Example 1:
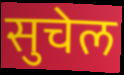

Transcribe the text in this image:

सुचेल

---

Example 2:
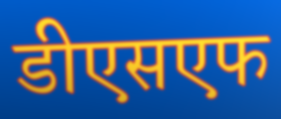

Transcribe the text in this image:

डीएसएफ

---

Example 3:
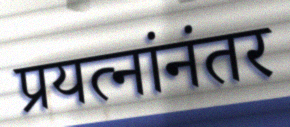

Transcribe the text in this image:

प्रयत्नांनंतर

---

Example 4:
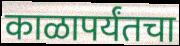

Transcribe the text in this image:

काळापर्यंतचा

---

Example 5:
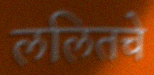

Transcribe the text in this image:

ललितचे